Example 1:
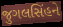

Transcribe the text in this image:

જુગલસિંહને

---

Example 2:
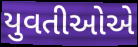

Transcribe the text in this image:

યુવતીઓએ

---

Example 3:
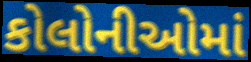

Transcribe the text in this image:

કોલોનીઓમાં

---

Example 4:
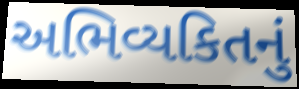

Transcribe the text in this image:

અભિવ્યકિતનું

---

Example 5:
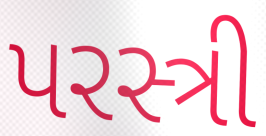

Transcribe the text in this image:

પરસ્ત્રી